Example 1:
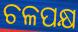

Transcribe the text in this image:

ଚଳପକ୍ଷ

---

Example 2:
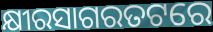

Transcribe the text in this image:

କ୍ଷୀରସାଗରତଟରେ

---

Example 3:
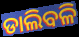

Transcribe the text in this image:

ଡାଲିବଳି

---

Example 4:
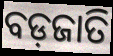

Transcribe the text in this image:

ବଡ଼ଜାତି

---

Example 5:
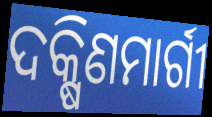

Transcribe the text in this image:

ଦକ୍ଷିଣମାର୍ଗୀ